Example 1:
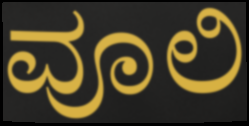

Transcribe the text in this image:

ವೂಲಿ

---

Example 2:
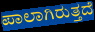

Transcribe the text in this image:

ಪಾಲಾಗಿರುತ್ತದೆ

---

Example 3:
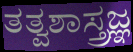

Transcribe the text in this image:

ತತ್ವಶಾಸ್ತ್ರಜ್ಞ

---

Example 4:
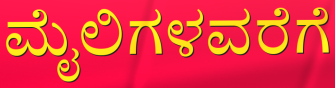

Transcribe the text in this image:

ಮೈಲಿಗಳವರೆಗೆ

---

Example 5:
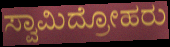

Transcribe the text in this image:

ಸ್ವಾಮಿದ್ರೋಹರು